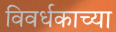
विवर्धकाच्या